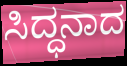
ಸಿದ್ಧನಾದ